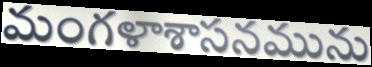
మంగళాశాసనమును